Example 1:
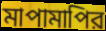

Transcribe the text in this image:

মাপামাপির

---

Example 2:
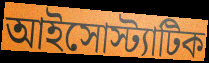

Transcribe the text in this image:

আইসোস্ট্যাটিক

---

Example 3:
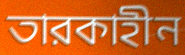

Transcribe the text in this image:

তারকাহীন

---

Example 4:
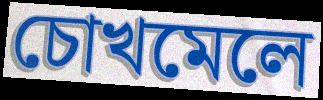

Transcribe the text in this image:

চোখমেলে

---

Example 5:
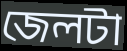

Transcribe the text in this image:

জেলটা